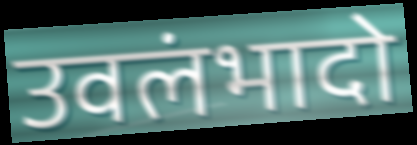
उवलंभादो